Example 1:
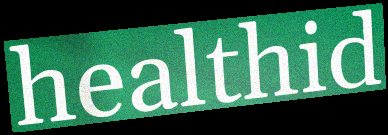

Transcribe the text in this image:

healthid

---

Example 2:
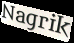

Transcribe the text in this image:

Nagrik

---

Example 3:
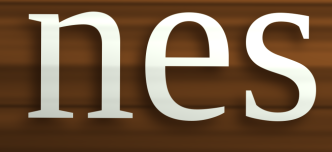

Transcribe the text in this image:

nes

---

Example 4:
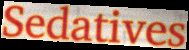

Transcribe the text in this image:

Sedatives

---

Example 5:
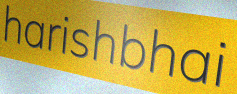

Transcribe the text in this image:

harishbhai